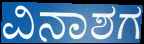
ವಿನಾಶಗ